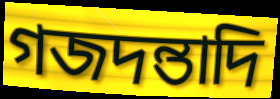
গজদন্তাদি